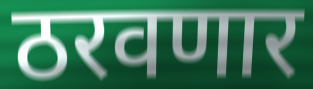
ठरवणार